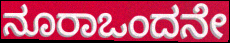
ನೂರಾಒಂದನೇ